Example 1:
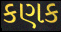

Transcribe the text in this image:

કણક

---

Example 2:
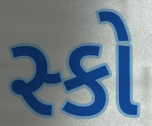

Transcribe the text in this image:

સ્કો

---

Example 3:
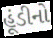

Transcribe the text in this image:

હૂંડીનો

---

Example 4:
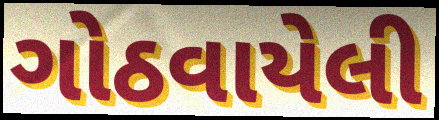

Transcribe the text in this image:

ગોઠવાયેલી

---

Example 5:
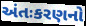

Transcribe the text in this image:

અંતઃકરણનો